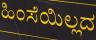
ಹಿಂಸೆಯಿಲ್ಲದ